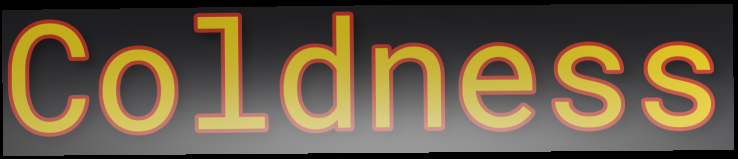
Coldness